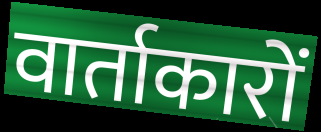
वार्ताकारों